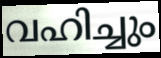
വഹിച്ചും